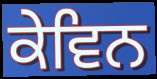
ਕੇਵਿਨ